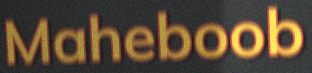
Maheboob